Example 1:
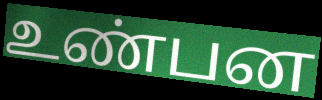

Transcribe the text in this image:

உண்பன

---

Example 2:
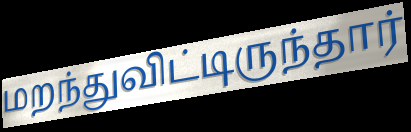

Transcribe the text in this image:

மறந்துவிட்டிருந்தார்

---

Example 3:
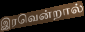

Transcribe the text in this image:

இரவென்றால்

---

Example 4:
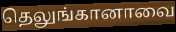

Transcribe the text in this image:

தெலுங்கானாவை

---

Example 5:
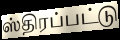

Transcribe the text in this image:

ஸ்திரப்பட்டு